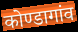
कोण्डागांव